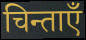
चिन्ताएँ